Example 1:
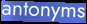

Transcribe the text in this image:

antonyms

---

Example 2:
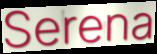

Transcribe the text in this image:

Serena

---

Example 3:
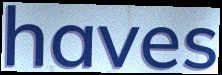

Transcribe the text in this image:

haves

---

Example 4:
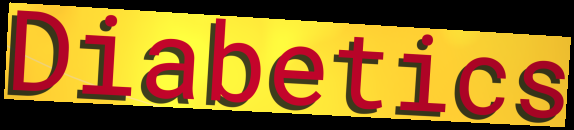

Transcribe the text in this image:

Diabetics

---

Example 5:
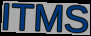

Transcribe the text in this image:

ITMS